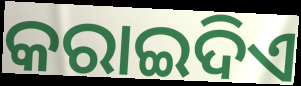
କରାଇଦିଏ